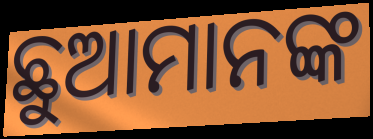
ଛୁଆମାନଙ୍କ